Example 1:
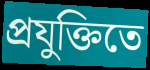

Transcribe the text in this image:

প্রযুক্তিতে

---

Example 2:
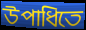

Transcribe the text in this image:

উপাধিতে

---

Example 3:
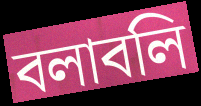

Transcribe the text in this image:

বলাবলি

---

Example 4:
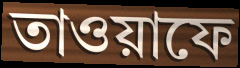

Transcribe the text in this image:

তাওয়াফে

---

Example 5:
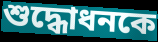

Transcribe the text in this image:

শুদ্ধোধনকে